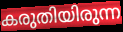
കരുതിയിരുന്ന